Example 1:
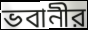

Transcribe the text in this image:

ভবানীর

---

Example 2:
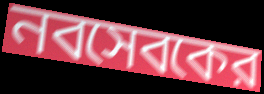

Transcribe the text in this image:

নবসেবকের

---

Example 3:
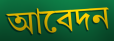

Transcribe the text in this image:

আবেদন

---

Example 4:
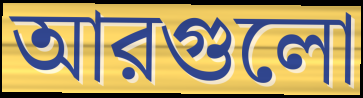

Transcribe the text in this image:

আরগুলো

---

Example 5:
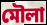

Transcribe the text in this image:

মৌলা